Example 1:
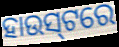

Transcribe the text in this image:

ହାଉସ୍‌ଟରେ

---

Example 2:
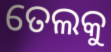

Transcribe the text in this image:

ତେଲକୁ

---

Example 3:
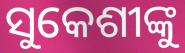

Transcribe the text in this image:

ସୁକେଶୀଙ୍କୁ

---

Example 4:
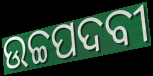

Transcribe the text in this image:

ଉଚ୍ଚପଦବୀ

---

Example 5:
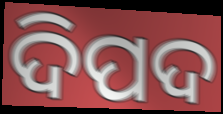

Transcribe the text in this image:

ଦିପଦ